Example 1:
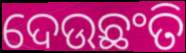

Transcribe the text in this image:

ଦେଉଛଂତି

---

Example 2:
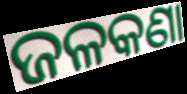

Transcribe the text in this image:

ଜଳକଣା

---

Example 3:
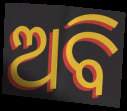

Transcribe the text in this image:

ଅବି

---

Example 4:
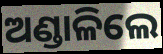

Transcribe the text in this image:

ଅଣ୍ଡାଳିଲେ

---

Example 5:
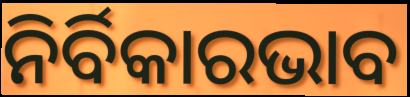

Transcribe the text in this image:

ନିର୍ବିକାରଭାବ